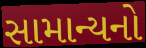
સામાન્યનો